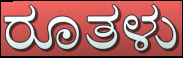
ರೂತಳು